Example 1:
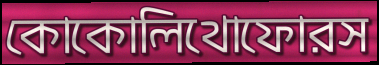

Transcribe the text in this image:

কোকোলিথোফোরস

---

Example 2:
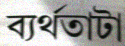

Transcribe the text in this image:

ব্যর্থতাটা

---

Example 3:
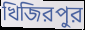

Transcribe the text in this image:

খিজিরপুর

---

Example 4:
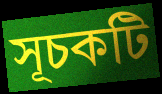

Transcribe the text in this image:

সূচকটি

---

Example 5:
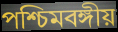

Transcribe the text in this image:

পশ্চিমবঙ্গীয়